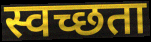
स्वच्छता